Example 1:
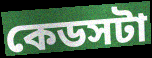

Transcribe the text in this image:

কেডসটা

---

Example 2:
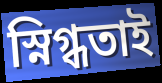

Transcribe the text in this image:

স্নিগ্ধতাই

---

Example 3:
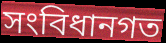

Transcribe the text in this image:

সংবিধানগত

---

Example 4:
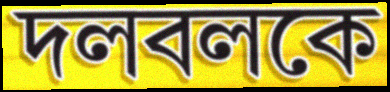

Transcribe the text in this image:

দলবলকে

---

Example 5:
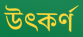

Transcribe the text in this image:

উৎকর্ণ